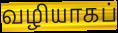
வழியாகப்